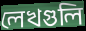
লেখগুলি